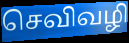
செவிவழி